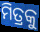
ମିତ୍ରକୁ